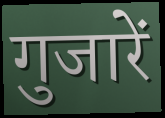
गुजारें